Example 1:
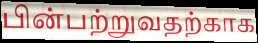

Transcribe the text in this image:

பின்பற்றுவதற்காக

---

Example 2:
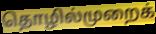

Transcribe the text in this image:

தொழில்முறைக்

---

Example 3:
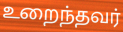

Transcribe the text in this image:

உறைந்தவர்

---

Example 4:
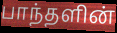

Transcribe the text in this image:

பாந்தளின்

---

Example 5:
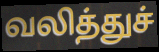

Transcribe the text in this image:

வலித்துச்